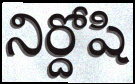
నిర్దోషి